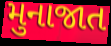
મુનાજાત